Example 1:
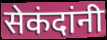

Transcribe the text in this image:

सेकंदांनी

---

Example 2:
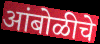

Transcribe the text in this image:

आंबोळीचे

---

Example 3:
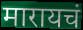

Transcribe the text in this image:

मारायचं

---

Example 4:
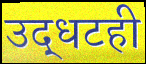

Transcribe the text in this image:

उद्धटही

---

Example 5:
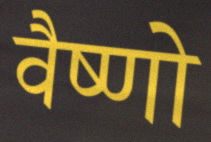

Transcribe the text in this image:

वैष्णो